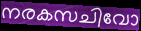
നരകസചിവോ